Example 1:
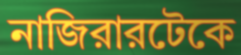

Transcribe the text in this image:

নাজিরারটেকে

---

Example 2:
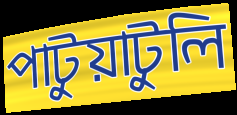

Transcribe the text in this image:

পাটুয়াটুলি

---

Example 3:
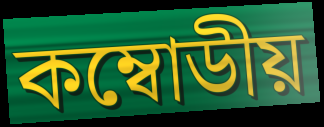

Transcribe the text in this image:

কম্বোডীয়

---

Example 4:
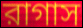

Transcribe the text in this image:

রাগাস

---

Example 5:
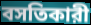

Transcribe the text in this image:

বসতিকারী